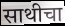
साथीचा